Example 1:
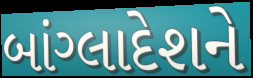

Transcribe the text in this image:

બાંગ્લાદેશને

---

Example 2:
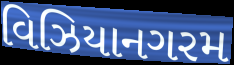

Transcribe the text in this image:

વિઝિયાનગરમ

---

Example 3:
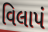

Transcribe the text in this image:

વિલાપં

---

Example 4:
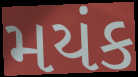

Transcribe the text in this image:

મયંક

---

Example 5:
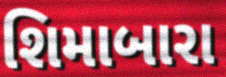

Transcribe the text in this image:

શિમાબારા